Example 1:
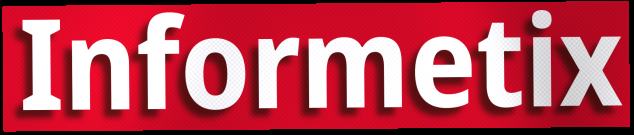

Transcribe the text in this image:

Informetix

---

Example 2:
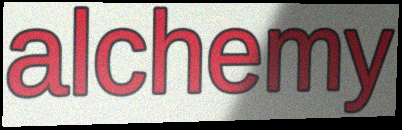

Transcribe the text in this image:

alchemy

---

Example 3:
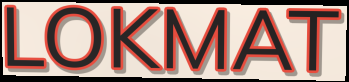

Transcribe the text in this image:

LOKMAT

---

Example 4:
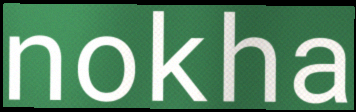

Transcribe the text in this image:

nokha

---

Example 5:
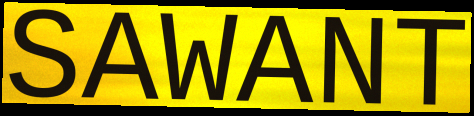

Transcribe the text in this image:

SAWANT